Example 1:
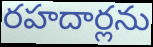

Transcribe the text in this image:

రహదార్లను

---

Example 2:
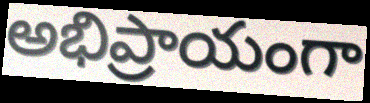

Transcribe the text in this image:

అభిప్రాయంగా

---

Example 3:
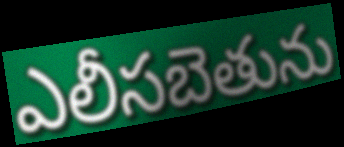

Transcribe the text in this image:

ఎలీసబెతును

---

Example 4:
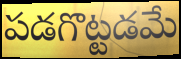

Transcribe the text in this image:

పడగొట్టడమే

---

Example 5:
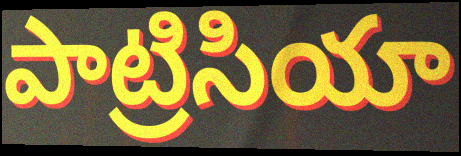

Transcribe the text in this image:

పాట్రిసియా